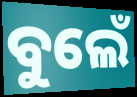
ବୁଲେଁ